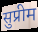
सुप्रीम